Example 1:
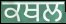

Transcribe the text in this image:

ਕਥਲ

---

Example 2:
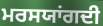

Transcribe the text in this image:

ਮਰਸਯਾਂਗਦੀ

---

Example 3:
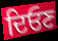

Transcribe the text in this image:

ਦਿਓਣ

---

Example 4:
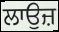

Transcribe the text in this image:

ਲਾਉਜ਼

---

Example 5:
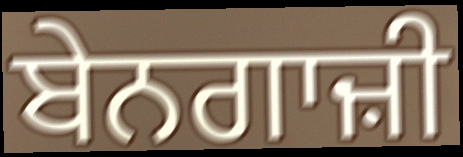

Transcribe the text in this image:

ਬੇਨਗਾਜ਼ੀ